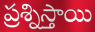
ప్రశ్నిస్తాయి